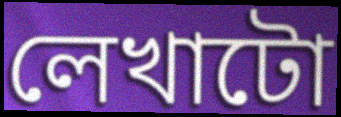
লেখাটো